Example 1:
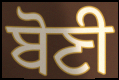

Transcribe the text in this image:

ਬੋਣੀ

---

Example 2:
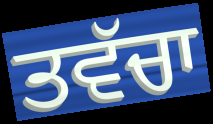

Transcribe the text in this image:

ਤਵੱਚਾ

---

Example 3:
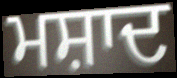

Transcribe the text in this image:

ਮਸ਼ਾਦ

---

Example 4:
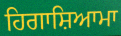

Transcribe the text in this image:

ਹਿਗਾਸ਼ਿਆਮਾ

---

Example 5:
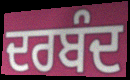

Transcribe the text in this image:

ਦਰਬੰਦ